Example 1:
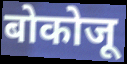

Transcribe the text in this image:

बोकोजू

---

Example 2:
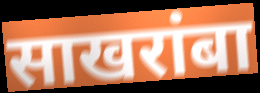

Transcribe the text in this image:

साखरांबा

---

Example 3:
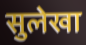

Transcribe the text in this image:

सुलेखा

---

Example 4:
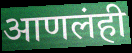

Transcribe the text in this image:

आणलंही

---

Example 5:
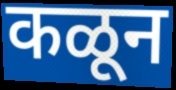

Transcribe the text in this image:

कळून